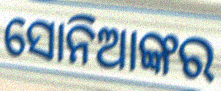
ସୋନିଆଙ୍କର